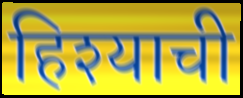
हिश्याची